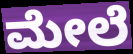
ಮೇಲೆ